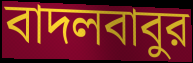
বাদলবাবুর